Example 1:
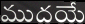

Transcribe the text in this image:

ముదయే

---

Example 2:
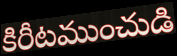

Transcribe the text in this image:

కిరీటముంచుడి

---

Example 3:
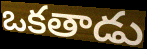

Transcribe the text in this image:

ఒకతాడు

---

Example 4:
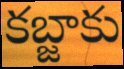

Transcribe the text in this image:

కబ్జాకు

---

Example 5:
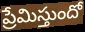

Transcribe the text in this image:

ప్రేమిస్తుందో